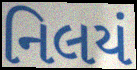
નિલયં